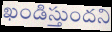
ఖండిస్తుందని